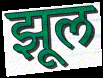
झूल